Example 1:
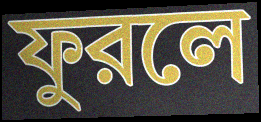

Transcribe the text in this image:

ফুরলে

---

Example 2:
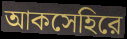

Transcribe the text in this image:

আকসেহিরে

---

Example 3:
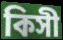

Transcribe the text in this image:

কিসী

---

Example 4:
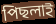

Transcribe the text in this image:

পিছলাই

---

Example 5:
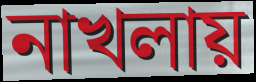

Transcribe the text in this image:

নাখলায়